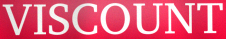
VISCOUNT